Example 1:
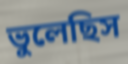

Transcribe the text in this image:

ভুলেছিস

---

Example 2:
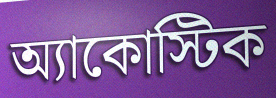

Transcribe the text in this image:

অ্যাকোস্টিক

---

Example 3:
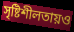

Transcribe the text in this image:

সৃষ্টিশীলতায়ও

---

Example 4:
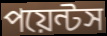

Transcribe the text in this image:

পয়েন্টস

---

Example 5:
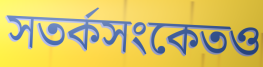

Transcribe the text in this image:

সতর্কসংকেতও